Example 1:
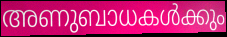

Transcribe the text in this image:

അണുബാധകൾക്കും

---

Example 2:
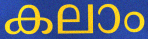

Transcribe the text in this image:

കലാം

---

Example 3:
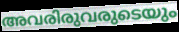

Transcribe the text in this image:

അവരിരുവരുടെയും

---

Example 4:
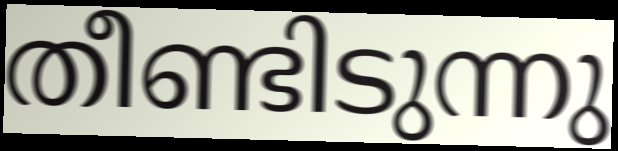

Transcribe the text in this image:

തീണ്ടിടുന്നു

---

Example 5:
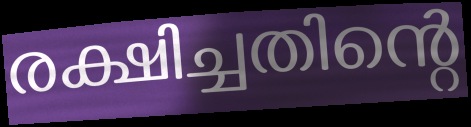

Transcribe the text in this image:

രക്ഷിച്ചതിന്റെ